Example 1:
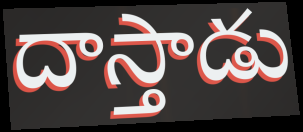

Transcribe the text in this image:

దాస్తాడు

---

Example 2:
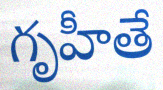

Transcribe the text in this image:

గృహీతే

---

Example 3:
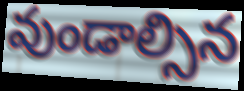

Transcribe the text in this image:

వుండాల్సిన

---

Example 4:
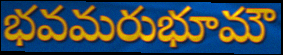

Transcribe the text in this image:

భవమరుభూమౌ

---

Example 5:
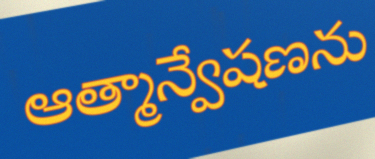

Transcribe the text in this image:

ఆత్మాన్వేషణను